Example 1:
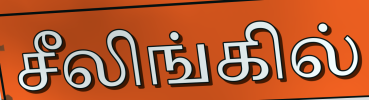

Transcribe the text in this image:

சீலிங்கில்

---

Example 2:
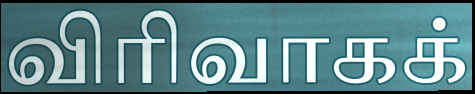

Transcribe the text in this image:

விரிவாகக்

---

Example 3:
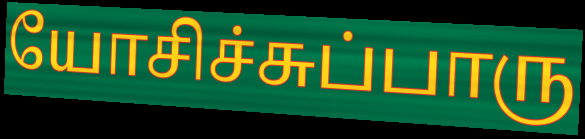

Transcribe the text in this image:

யோசிச்சுப்பாரு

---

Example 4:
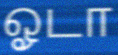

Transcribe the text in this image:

ஓடா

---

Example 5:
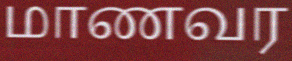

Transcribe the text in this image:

மாணவர